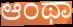
ಆಂಥಾ